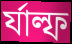
র্যাল্ফ